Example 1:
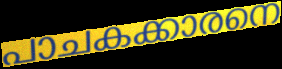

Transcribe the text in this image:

പാചകക്കാരനെ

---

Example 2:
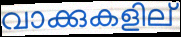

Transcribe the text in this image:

വാക്കുകളില്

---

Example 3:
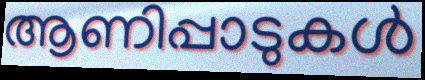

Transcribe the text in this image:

ആണിപ്പാടുകൾ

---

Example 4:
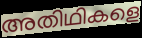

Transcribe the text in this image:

അതിഥികളെ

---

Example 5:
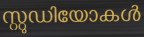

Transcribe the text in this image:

സ്റ്റുഡിയോകൾ